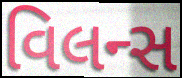
વિલન્સ